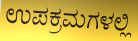
ಉಪಕ್ರಮಗಳಲ್ಲಿ